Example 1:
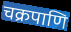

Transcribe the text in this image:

चक्रपाणि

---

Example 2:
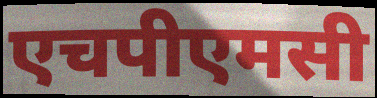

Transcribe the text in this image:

एचपीएमसी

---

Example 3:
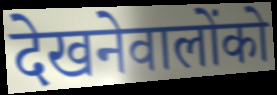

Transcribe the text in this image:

देखनेवालोंको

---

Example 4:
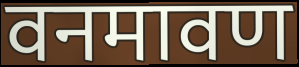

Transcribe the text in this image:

वनमावण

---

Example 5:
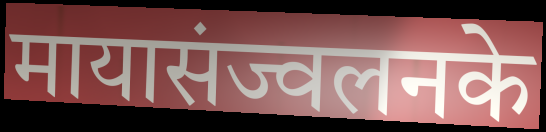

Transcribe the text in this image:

मायासंज्वलनके